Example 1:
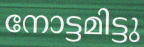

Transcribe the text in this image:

നോട്ടമിട്ടു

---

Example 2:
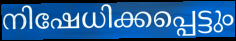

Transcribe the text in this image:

നിഷേധിക്കപ്പെട്ടും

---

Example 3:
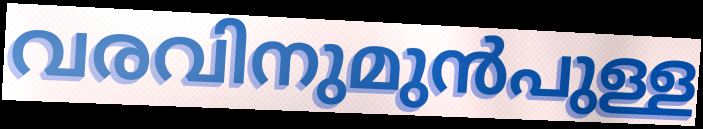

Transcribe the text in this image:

വരവിനുമുൻപുള്ള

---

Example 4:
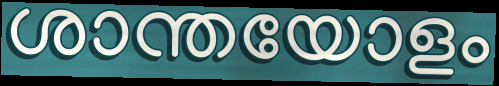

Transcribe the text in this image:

ശാന്തയോളം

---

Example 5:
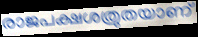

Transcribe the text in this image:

രാജപക്ഷശത്രുതയാണ്